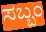
ಸಬ್ಬಂ